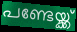
പണ്ടേയ്ക്ക്